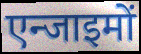
एन्जाइमों